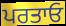
ਪਰਤਾਓ